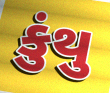
કુંથુ